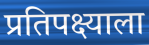
प्रतिपक्ष्याला